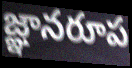
జ్ఞానరూప